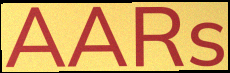
AARs